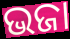
ଭଜା